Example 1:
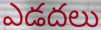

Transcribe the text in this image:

ఎడదలు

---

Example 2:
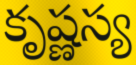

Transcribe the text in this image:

కృష్ణస్య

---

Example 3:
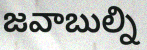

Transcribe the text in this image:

జవాబుల్ని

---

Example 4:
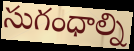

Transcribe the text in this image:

సుగంధాల్ని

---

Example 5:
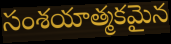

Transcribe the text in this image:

సంశయాత్మకమైన